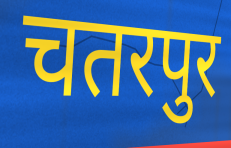
चतरपुर